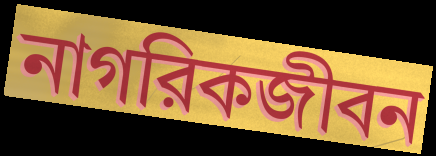
নাগরিকজীবন